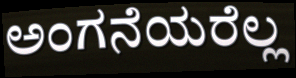
ಅಂಗನೆಯರೆಲ್ಲ